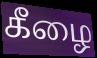
கீழை